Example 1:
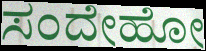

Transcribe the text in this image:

ಸಂದೇಹೋ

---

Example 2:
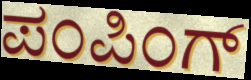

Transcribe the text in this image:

ಪಂಪಿಂಗ್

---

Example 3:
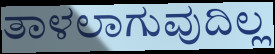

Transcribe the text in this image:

ತಾಳಲಾಗುವುದಿಲ್ಲ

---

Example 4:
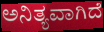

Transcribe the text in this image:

ಅನಿತ್ಯವಾಗಿದೆ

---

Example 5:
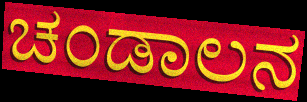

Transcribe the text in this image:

ಚಂಡಾಲನ